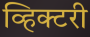
व्हिक्टरी